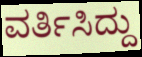
ವರ್ತಿಸಿದ್ದು